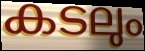
കടലും